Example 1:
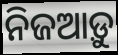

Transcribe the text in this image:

ନିଜଆଡ଼ୁ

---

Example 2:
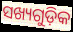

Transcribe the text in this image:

ସଖ୍ୟଗୁଡ଼ିକ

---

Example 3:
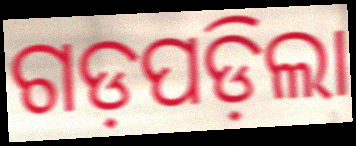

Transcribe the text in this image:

ଗଡ଼ପଡ଼ିଲା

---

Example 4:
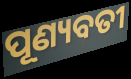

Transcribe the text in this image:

ପୂଣ୍ୟବତୀ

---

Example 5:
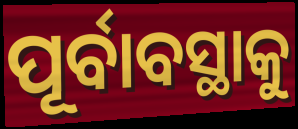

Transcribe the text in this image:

ପୂର୍ବାବସ୍ଥାକୁ